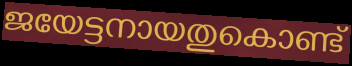
ജയേട്ടനായതുകൊണ്ട്